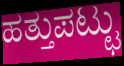
ಹತ್ತುಪಟ್ಟು